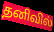
தனிவில்